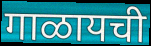
गाळायची